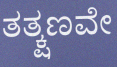
ತತ್ಕ್ಷಣವೇ